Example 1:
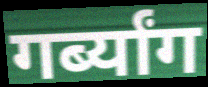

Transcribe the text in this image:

गर्ब्यांग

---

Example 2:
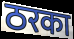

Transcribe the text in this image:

ठरका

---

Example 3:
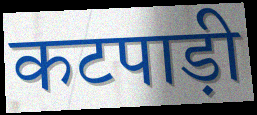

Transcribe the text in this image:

कटपाड़ी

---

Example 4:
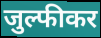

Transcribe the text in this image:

जुल्फीकर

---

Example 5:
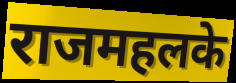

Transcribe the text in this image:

राजमहलके